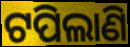
ଟପିଲାଣି